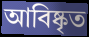
আবিষ্কৃত